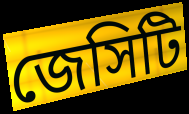
জেসিটি